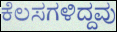
ಕೆಲಸಗಳಿದ್ದವು